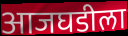
आजघडीला